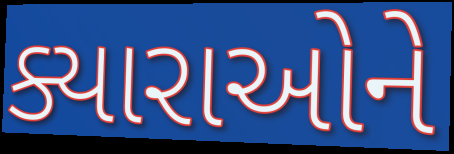
ક્યારાઓને